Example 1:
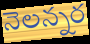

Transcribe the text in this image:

నెలన్నర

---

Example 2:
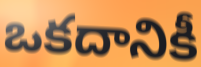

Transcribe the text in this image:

ఒకదానికీ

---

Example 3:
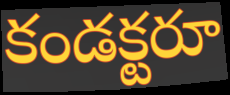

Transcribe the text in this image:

కండక్టరూ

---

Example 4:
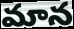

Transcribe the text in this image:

మాన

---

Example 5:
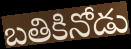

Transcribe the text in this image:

బతికినోడు